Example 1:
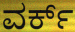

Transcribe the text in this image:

ವರ್ಕ್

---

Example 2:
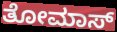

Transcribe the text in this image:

ತೋಮಾಸ್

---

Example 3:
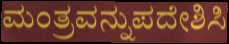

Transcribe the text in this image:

ಮಂತ್ರವನ್ನುಪದೇಶಿಸಿ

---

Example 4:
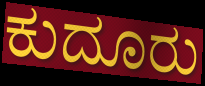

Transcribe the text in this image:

ಕುದೂರು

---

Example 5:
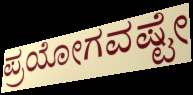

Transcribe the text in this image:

ಪ್ರಯೋಗವಷ್ಟೇ